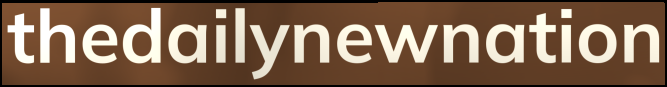
thedailynewnation